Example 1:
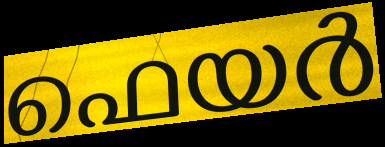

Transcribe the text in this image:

ഫെയർ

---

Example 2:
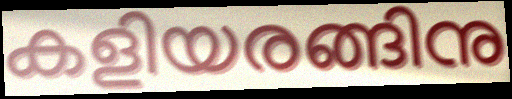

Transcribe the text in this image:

കളിയരങ്ങിനു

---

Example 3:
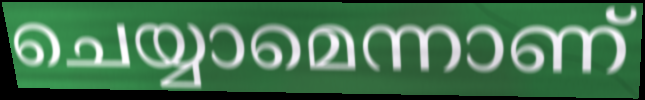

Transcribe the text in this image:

ചെയ്യാമെന്നാണ്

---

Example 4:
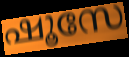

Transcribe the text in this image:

ഷൂസേ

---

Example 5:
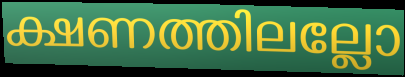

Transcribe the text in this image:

ക്ഷണത്തിലല്ലോ